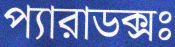
প্যারাডক্সঃ